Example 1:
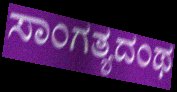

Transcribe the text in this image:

ಸಾಂಗತ್ಯದಂಥ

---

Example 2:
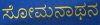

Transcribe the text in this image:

ಸೋಮನಾಥನ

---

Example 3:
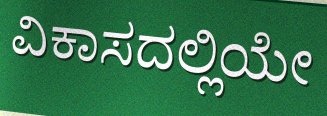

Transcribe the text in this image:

ವಿಕಾಸದಲ್ಲಿಯೇ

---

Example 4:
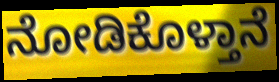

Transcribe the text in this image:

ನೋಡಿಕೊಳ್ತಾನೆ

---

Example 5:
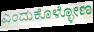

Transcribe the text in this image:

ಎಂದುಕೊಳ್ಳೋಣ